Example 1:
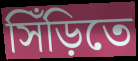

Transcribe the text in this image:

সিঁড়িতে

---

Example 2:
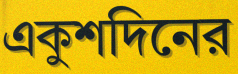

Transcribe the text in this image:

একুশদিনের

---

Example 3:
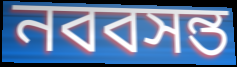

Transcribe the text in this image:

নববসন্ত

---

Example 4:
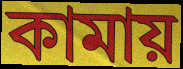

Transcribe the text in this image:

কামায়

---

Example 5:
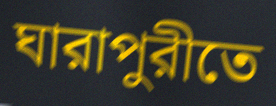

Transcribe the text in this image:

ঘারাপুরীতে